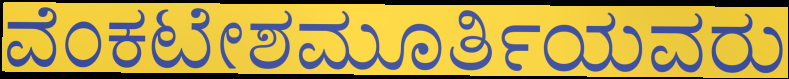
ವೆಂಕಟೇಶಮೂರ್ತಿಯವರು